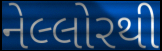
નેલ્લોરથી